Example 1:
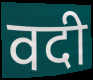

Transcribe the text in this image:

वदी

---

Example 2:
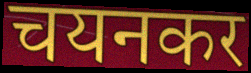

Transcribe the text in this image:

चयनकर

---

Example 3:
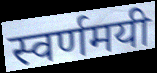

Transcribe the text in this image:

स्वर्णमयी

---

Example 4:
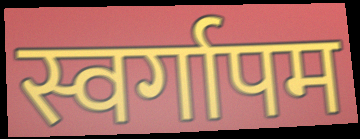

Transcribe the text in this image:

स्वर्गापम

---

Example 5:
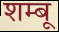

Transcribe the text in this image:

शम्बू